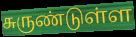
சுருண்டுள்ள